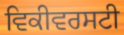
ਵਿਕੀਵਰਸਟੀ